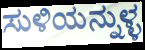
ಸುಳಿಯನ್ನುಳ್ಳ